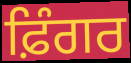
ਫ਼ਿੰਗਰ